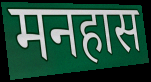
मनहास